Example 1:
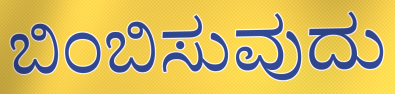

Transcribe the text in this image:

ಬಿಂಬಿಸುವುದು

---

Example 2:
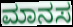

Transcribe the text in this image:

ಮಾನಸ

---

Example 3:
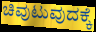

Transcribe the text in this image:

ಚಿವುಟುವುದಕ್ಕೆ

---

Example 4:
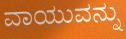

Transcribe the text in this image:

ವಾಯುವನ್ನು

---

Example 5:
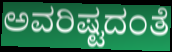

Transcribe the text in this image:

ಅವರಿಷ್ಟದಂತೆ